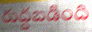
రుద్దబడింది